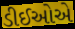
ડીઈઓએ